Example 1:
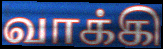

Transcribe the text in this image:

வாக்கி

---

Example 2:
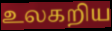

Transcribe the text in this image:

உலகறிய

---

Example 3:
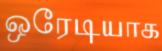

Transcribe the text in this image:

ஒரேடியாக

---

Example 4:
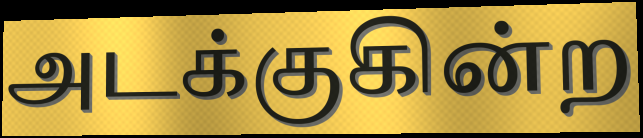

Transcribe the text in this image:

அடக்குகின்ற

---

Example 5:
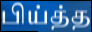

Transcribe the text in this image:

பிய்த்த